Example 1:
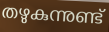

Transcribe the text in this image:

തഴുകുന്നുണ്ട്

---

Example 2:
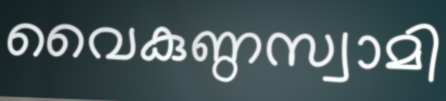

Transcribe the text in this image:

വൈകുണ്ഠസ്വാമി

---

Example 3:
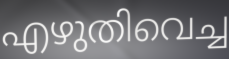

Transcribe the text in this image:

എഴുതിവെച്ച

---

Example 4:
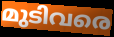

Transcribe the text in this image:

മുടിവരെ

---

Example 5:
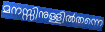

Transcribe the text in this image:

മനസ്സിനുള്ളിൽതന്നെ